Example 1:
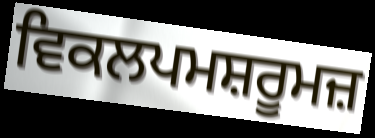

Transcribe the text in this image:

ਵਿਕਲਪਮਸ਼ਰੂਮਜ਼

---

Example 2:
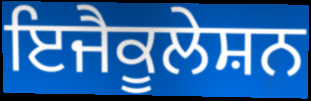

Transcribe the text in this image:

ਇਜੈਕੂਲੇਸ਼ਨ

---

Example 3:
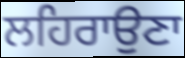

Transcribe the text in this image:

ਲਹਿਰਾਉਣਾ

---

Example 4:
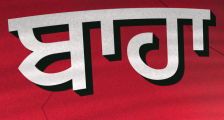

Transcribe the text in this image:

ਬਾਹਾ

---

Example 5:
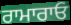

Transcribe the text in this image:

ਰਾਮਾਰਾਓ